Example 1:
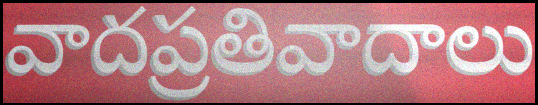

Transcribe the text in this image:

వాదప్రతివాదాలు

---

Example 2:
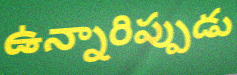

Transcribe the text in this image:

ఉన్నారిప్పుడు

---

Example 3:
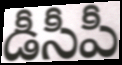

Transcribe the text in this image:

డీసీపీ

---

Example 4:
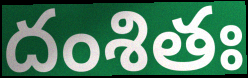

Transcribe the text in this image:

దంశితః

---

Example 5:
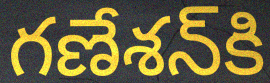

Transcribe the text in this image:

గణేశన్‍కి